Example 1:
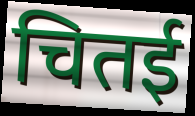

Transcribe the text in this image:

चितई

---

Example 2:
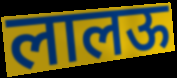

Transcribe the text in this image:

लालऊ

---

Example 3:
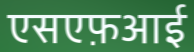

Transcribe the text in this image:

एसएफ़आई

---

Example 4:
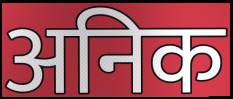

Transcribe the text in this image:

अनिक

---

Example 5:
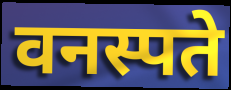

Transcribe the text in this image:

वनस्पते